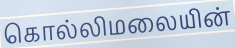
கொல்லிமலையின்